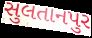
સુલતાનપુર